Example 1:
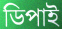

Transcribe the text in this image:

ডিপাই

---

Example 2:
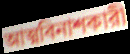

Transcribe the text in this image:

আত্মবিনাশকারী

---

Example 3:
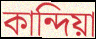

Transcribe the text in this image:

কান্দিয়া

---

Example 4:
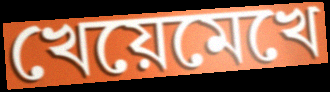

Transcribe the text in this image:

খেয়েমেখে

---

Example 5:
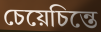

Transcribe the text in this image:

চেয়েচিন্তে